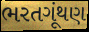
ભરતગૂંથણ